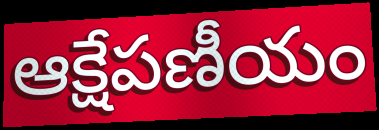
ఆక్షేపణీయం